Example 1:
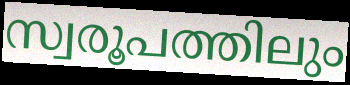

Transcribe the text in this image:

സ്വരൂപത്തിലും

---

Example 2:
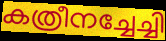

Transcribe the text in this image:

കത്രീനച്ചേച്ചി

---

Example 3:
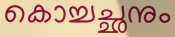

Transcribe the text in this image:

കൊച്ചച്ഛനും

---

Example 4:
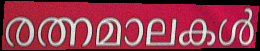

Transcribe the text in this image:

രത്നമാലകൾ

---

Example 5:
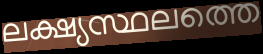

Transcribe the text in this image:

ലക്ഷ്യസ്ഥലത്തെ